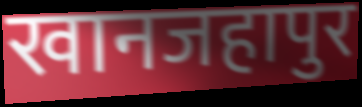
खानजहापुर